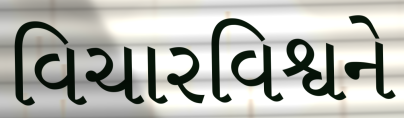
વિચારવિશ્વને